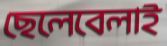
ছেলেবেলাই